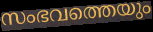
സംഭവത്തെയും